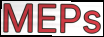
MEPs